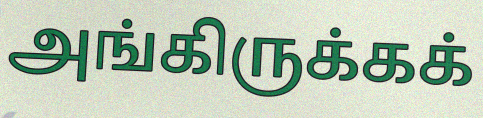
அங்கிருக்கக்